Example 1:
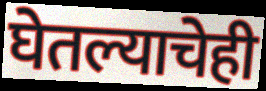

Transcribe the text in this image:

घेतल्याचेही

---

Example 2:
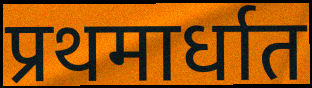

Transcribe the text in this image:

प्रथमार्धात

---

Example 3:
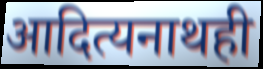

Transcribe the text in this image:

आदित्यनाथही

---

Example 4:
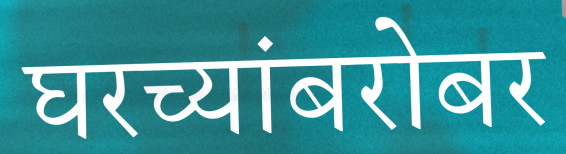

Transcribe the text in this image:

घरच्यांबरोबर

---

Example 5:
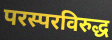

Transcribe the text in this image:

परस्परविरुद्ध